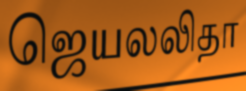
ஜெயலலிதா